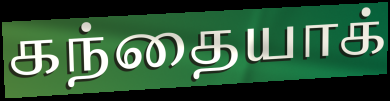
கந்தையாக்